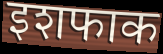
इशफाक